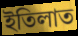
ইতিলাত